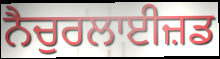
ਨੈਚੁਰਲਾਈਜ਼ਡ